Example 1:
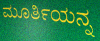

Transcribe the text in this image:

ಮೂರ್ತಿಯನ್ನ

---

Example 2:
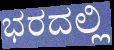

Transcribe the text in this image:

ಭರದಲ್ಲಿ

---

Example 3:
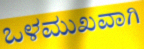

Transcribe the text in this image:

ಒಳಮುಖವಾಗಿ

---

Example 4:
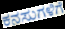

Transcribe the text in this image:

ಕನಸುಗಳಿಗೆ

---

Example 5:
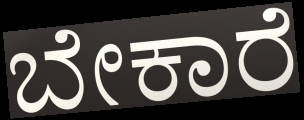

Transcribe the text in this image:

ಬೇಕಾರೆ